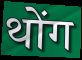
थोंग